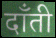
दाँती